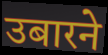
उबारने